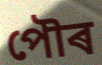
পৌৰ